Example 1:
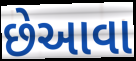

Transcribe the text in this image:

છેઆવા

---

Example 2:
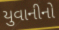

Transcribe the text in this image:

યુવાનીનો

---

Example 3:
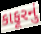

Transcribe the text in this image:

કાફૂરનું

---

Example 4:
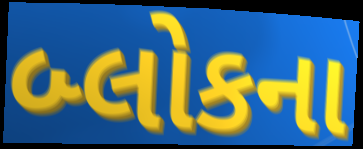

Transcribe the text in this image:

બ્લોકના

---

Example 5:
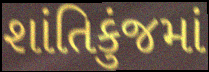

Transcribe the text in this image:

શાંતિકુંજમાં